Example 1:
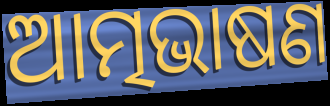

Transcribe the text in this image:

ଆତ୍ମଭାଷଣ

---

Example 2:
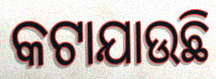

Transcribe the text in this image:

କଟାଯାଉଛି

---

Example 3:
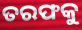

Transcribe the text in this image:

ତରଫକୁ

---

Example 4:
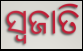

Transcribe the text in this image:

ସ୍ବଜାତି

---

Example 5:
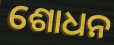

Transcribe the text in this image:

ଶୋଧନ